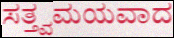
ಸತ್ತ್ವಮಯವಾದ